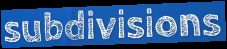
subdivisions